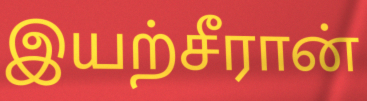
இயற்சீரான்